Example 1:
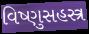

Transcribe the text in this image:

વિષ્ણુસહસ્ત્ર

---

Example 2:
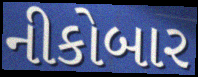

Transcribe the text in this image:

નીકોબાર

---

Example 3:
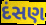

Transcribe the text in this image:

દંસણ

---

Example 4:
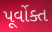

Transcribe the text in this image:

પૂર્વોક્ત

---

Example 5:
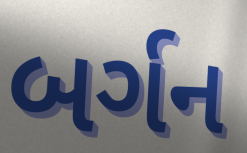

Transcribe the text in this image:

બર્ગન